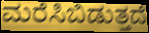
ಮರೆಸಿಬಿಡುತ್ತದೆ